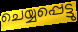
ചെയ്യപ്പെട്ടു